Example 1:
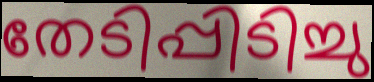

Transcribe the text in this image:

തേടിപ്പിടിച്ചു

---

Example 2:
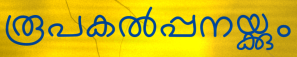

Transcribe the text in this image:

രൂപകൽപ്പനയ്ക്കും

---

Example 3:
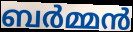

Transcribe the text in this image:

ബർമ്മൻ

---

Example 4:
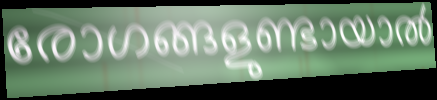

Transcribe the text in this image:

രോഗങ്ങളുണ്ടായാൽ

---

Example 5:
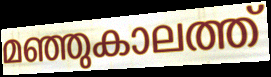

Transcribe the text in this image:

മഞ്ഞുകാലത്ത്